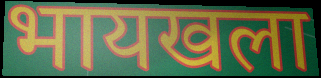
भायखला